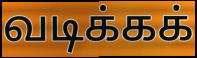
வடிக்கக்